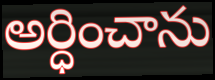
అర్ధించాను